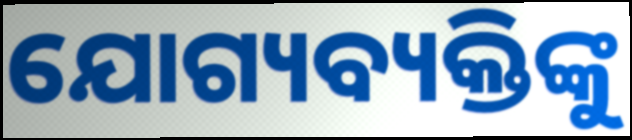
ଯୋଗ୍ୟବ୍ୟକ୍ତିଙ୍କୁ